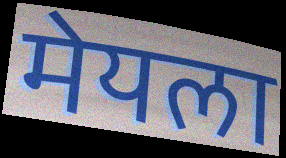
मेयला